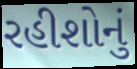
રહીશોનું